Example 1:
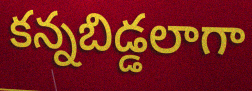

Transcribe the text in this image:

కన్నబిడ్డలాగా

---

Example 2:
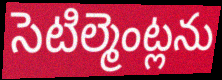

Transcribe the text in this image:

సెటిల్మెంట్లను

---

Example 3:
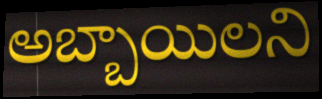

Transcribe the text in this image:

అబ్బాయిలని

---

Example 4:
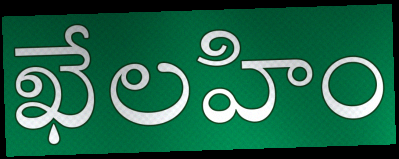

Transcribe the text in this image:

ఖేలహిం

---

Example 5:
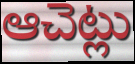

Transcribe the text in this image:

ఆచెట్లు